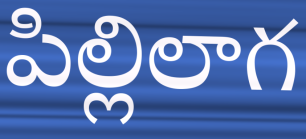
పిల్లిలాగ